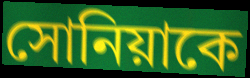
সোনিয়াকে